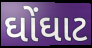
ઘોંઘાટ